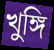
খুঙ্গি